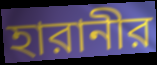
হারানীর